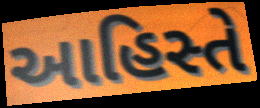
આહિસ્તે